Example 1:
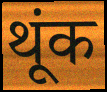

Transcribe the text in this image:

थूंक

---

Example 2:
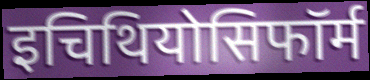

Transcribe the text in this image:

इचिथियोसिफॉर्म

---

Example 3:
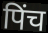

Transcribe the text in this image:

पिंच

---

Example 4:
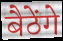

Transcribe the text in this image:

बैठेंगे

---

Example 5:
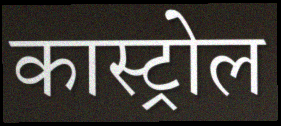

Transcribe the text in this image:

कास्ट्रोल